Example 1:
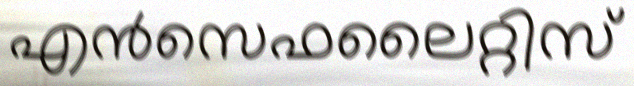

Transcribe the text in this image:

എൻസെഫലൈറ്റിസ്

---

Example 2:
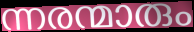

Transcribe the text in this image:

ന്നരന്മാരും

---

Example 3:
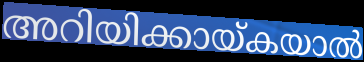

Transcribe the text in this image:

അറിയിക്കായ്കയാൽ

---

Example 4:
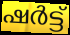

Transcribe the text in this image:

ഷർട്ട്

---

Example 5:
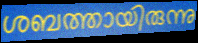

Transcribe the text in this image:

ശബത്തായിരുന്നു